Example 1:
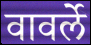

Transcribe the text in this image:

वावर्ले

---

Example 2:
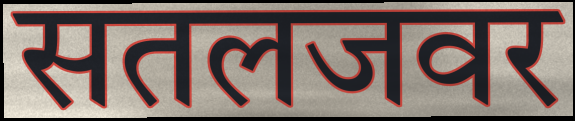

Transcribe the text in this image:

सतलजवर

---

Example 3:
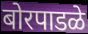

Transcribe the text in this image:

बोरपाडळे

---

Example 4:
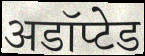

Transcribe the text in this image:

अडॉप्टेड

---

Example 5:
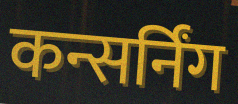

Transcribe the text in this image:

कन्सर्निंग